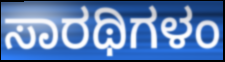
ಸಾರಥಿಗಳಂ